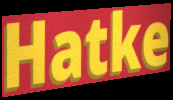
Hatke